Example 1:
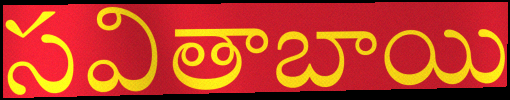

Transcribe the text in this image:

సవితాబాయి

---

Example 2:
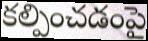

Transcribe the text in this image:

కల్పించడంపై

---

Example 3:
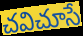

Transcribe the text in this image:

చవిచూసే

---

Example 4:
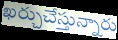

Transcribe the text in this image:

ఖర్చుచేస్తున్నారు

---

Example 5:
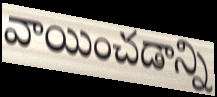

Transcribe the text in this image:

వాయించడాన్ని